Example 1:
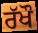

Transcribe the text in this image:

ਰੱਖੌ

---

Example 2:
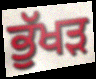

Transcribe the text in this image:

ਭੁੱਖੜ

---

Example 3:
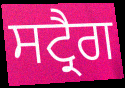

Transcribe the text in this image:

ਸਟ੍ਰੈਗ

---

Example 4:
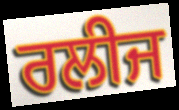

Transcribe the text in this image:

ਰਲੀਜ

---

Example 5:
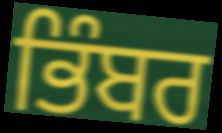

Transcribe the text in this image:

ਭਿੰਬਰ